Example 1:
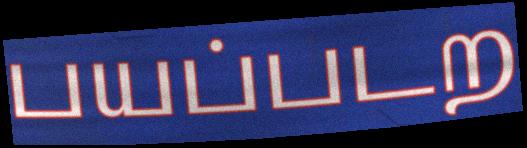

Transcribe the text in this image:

பயப்படற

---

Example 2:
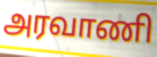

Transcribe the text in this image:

அரவாணி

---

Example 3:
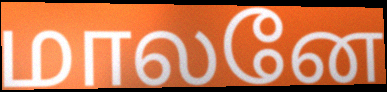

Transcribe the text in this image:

மாலனே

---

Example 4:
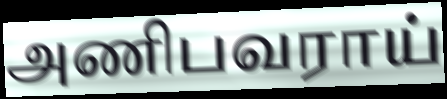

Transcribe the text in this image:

அணிபவராய்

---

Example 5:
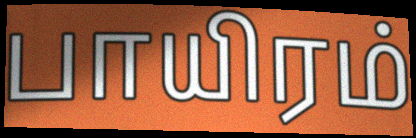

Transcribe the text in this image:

பாயிரம்